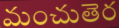
మంచుతెర